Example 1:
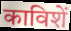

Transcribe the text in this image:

काविशें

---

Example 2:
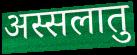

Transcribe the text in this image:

अस्सलातु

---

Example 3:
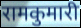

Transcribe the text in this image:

रामकुमारी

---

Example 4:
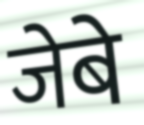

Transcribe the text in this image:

जेबे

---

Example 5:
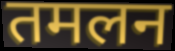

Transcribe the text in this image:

तमलन